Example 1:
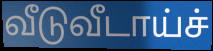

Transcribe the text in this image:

வீடுவீடாய்ச்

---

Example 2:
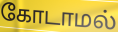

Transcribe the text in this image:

கோடாமல்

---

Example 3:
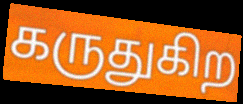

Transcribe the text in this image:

கருதுகிற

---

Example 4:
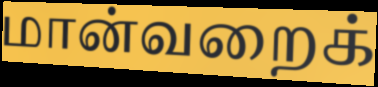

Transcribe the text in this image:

மான்வறைக்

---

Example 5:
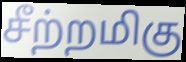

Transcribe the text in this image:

சீற்றமிகு